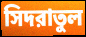
সিদরাতুল